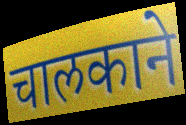
चालकाने